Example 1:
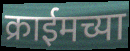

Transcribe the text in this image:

क्राईमच्या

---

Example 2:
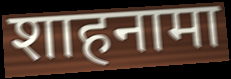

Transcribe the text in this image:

शाहनामा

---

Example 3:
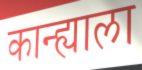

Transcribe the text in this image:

कान्ह्याला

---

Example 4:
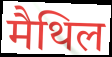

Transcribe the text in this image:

मैथिल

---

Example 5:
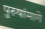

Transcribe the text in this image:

पुरुषांमागे